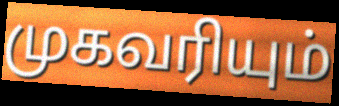
முகவரியும்